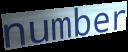
number